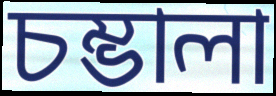
চম্ভালা